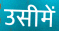
उसीमें